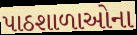
પાઠશાળાઓના